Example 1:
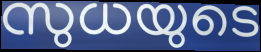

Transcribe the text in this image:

സുധയുടെ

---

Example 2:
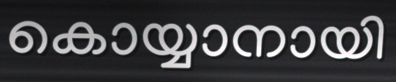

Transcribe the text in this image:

കൊയ്യാനായി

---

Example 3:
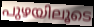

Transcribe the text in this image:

പുഴയിലൂടെ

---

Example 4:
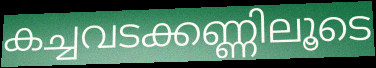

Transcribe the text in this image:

കച്ചവടക്കണ്ണിലൂടെ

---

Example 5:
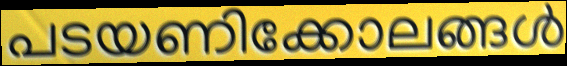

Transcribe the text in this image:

പടയണിക്കോലങ്ങൾ